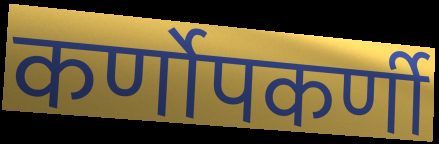
कर्णोपकर्णी